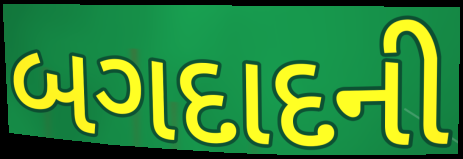
બગદાદની